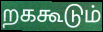
றககூடும்